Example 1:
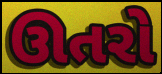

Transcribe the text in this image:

ઊતરો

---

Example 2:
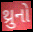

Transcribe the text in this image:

થ્રુનો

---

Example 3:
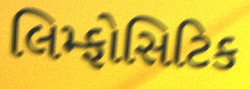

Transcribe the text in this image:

લિમ્ફોસિટિક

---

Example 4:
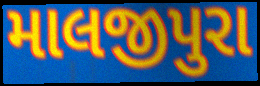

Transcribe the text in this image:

માલજીપુરા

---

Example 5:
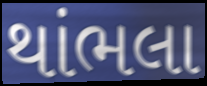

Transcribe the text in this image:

થાંભલા